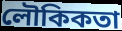
লৌকিকতা